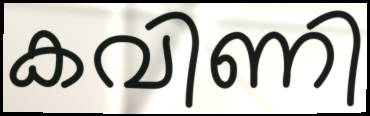
കവിണി